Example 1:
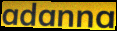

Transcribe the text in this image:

adanna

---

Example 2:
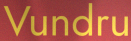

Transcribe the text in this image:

Vundru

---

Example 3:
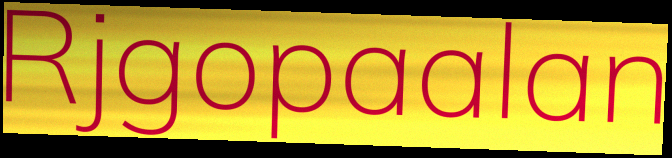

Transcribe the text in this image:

Rjgopaalan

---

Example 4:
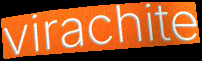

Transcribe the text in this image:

virachite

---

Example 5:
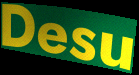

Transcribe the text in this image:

Desu